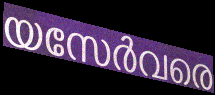
യസേർവരെ